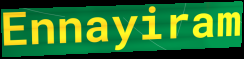
Ennayiram